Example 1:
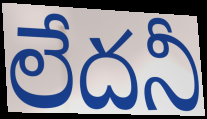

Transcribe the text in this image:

లేదనీ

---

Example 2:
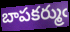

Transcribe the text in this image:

బాపకర్ముఁ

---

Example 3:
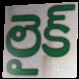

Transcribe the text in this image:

లైక్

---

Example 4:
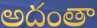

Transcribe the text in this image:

అదంతా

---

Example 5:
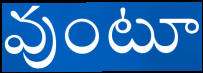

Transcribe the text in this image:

వుంటూ